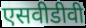
एसवीडीवी